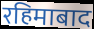
रहिमाबाद